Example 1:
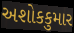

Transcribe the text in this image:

અશોકકુમાર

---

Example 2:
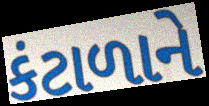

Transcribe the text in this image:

કંટાળાને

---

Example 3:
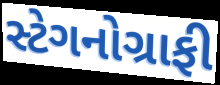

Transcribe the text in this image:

સ્ટેગનોગ્રાફી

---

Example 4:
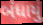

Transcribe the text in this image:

બંધાયું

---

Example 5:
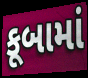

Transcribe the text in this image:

કૂબામાં